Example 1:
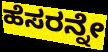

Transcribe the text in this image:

ಹೆಸರನ್ನೇ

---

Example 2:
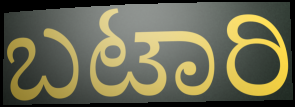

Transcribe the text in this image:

ಬಟಾರಿ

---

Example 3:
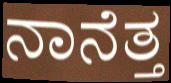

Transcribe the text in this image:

ನಾನೆತ್ತ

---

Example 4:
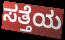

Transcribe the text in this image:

ಸತ್ತೆಯ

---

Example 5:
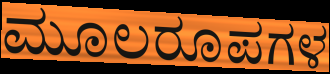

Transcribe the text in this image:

ಮೂಲರೂಪಗಳ